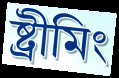
ষ্ট্ৰীমিং